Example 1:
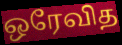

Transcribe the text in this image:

ஒரேவித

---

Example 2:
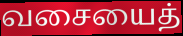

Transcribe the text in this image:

வசையைத்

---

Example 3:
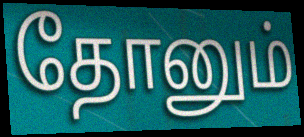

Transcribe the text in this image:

தோனும்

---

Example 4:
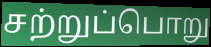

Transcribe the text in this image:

சற்றுப்பொறு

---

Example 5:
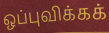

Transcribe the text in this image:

ஒப்புவிக்கக்